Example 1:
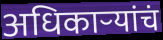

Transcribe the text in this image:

अधिकाऱ्यांचं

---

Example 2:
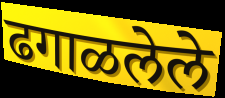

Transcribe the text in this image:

ढगाळलेले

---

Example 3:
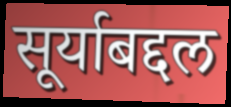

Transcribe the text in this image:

सूर्याबद्दल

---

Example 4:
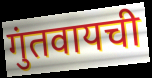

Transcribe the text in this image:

गुंतवायची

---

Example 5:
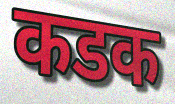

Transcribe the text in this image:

कडक